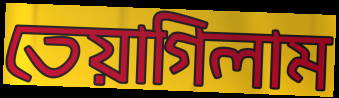
তেয়াগিলাম